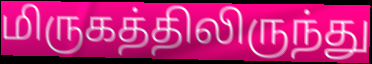
மிருகத்திலிருந்து